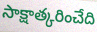
సాక్షాత్కరించేది